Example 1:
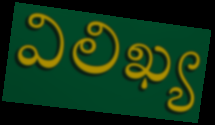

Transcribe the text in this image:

విలిఖ్య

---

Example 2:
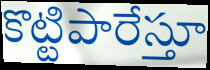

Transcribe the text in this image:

కొట్టిపారేస్తూ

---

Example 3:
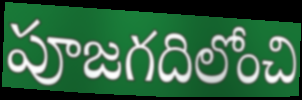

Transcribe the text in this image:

పూజగదిలోంచి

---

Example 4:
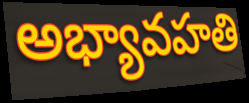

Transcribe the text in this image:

అభ్యావహతి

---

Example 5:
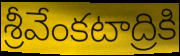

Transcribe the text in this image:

శ్రీవేంకటాద్రికి